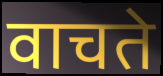
वाचते